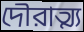
দৌরাত্ম্য